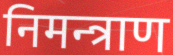
निमन्त्राण